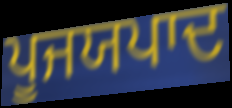
ਪੂਜਯਪਾਦ